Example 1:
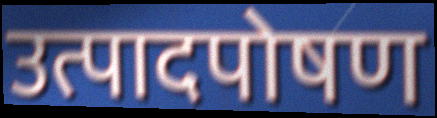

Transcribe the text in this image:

उत्पादपोषण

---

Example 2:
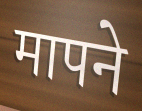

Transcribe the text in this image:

मापने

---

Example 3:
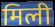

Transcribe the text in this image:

मिली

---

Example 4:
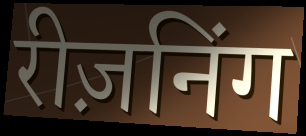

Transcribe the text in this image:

रीज़निंग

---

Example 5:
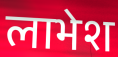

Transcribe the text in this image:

लाभेश